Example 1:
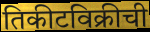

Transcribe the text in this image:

तिकीटविक्रीची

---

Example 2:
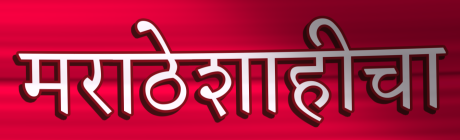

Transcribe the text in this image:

मराठेशाहीचा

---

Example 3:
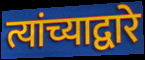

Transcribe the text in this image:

त्यांच्याद्वारे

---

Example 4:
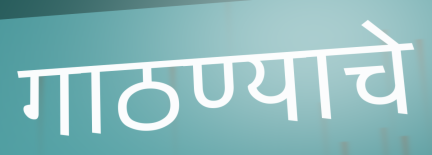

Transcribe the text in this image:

गाठण्याचे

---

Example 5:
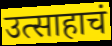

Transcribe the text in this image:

उत्साहाचं